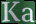
Ka